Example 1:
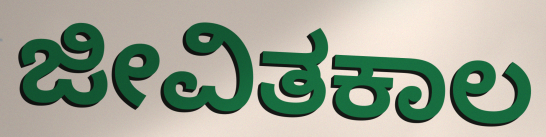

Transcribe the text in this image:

ಜೀವಿತಕಾಲ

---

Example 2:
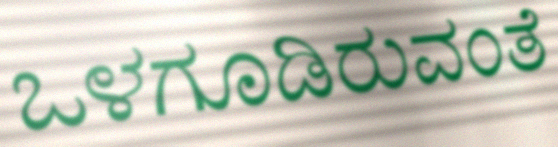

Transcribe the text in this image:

ಒಳಗೂಡಿರುವಂತೆ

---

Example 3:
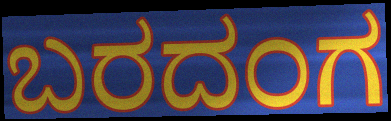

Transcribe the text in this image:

ಬರದಂಗ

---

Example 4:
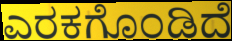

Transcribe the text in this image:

ಎರಕಗೊಂಡಿದೆ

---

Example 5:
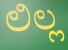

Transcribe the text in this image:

ಲಿಲ್ಲ